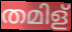
തമിള്